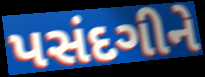
પસંદગીને